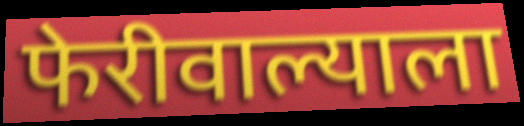
फेरीवाल्याला